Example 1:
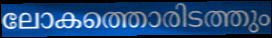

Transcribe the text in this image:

ലോകത്തൊരിടത്തും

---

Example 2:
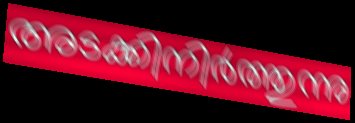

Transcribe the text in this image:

അടക്കിനിർത്തുന്നു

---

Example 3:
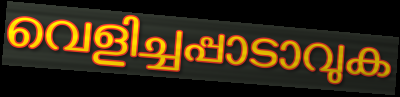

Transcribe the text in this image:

വെളിച്ചപ്പാടാവുക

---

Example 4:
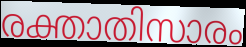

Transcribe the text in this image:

രക്താതിസാരം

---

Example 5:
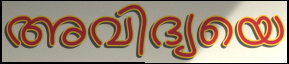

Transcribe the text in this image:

അവിദ്യയെ